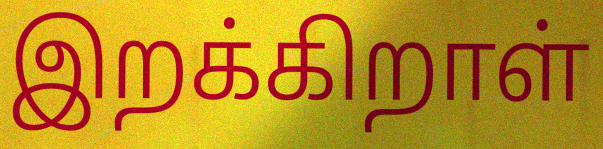
இறக்கிறாள்